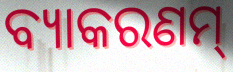
ବ୍ୟାକରଣମ୍